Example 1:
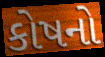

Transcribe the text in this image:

કોષનો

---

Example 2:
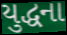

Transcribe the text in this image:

યુદ્ધના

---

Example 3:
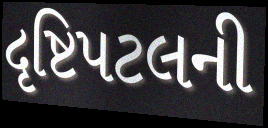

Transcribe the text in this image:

દૃષ્ટિપટલની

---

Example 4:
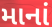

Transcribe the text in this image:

માનાં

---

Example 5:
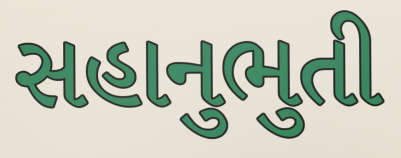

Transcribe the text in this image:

સહાનુભુતી